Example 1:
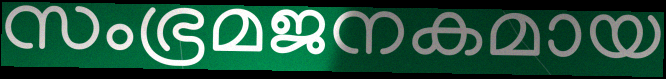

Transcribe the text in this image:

സംഭ്രമജനകമായ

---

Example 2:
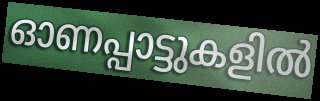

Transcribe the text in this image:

ഓണപ്പാട്ടുകളിൽ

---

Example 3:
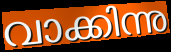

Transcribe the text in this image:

വാക്കിന്നു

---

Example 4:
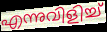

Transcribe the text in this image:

എന്നുവിളിച്ച്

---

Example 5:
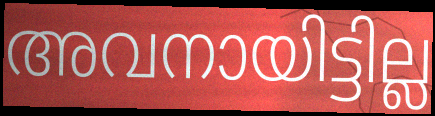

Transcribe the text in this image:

അവനായിട്ടില്ല